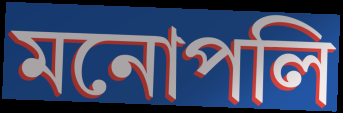
মনোপলি